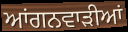
ਆਂਗਨਵਾੜੀਆਂ